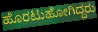
ಹೊರಟುಹೋಗಿದ್ದರು